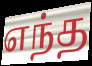
எந்த